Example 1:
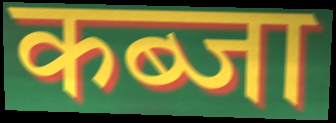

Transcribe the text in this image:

कब्जा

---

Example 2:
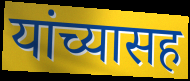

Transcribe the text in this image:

यांच्यासह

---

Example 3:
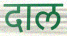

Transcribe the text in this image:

दाल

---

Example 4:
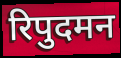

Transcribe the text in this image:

रिपुदमन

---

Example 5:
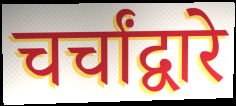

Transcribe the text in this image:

चर्चांद्वारे